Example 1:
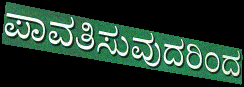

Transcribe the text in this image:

ಪಾವತಿಸುವುದರಿಂದ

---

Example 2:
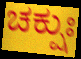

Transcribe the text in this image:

ಚಕ್ಷುಃ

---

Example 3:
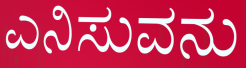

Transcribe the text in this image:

ಎನಿಸುವನು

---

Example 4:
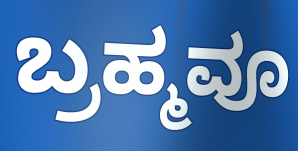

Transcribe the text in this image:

ಬ್ರಹ್ಮವೂ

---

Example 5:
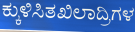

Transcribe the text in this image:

ಕ್ಕುಳಿಸಿತಖಿಲಾದ್ರಿಗಳ